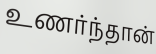
உணர்ந்தான்